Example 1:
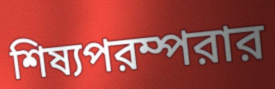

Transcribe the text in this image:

শিষ্যপরম্পরার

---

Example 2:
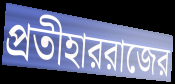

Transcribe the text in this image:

প্রতীহাররাজের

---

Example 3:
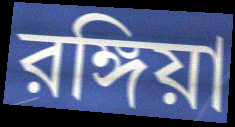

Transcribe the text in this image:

রঙ্গিয়া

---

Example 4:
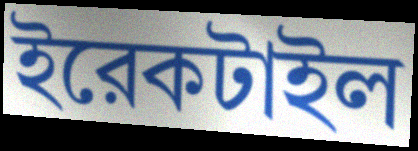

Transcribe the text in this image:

ইরেকটাইল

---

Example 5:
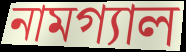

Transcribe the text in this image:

নামগ্যাল